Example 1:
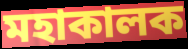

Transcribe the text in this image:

মহাকালক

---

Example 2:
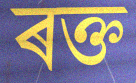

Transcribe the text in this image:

ৰক্ত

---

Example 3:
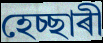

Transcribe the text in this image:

হেচ্ছাৰী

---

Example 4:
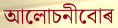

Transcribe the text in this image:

আলোচনীবোৰ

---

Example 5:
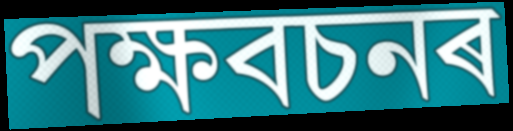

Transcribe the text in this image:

পক্ষবচনৰ